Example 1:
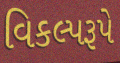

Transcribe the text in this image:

વિકલ્પરૂપે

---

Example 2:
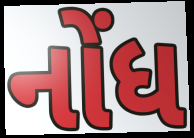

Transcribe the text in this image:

નોંધ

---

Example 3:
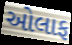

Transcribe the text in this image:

ઓલાફ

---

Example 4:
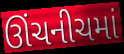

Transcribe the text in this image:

ઊંચનીચમાં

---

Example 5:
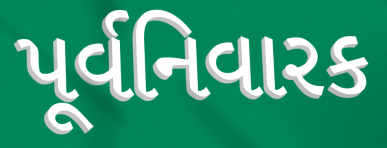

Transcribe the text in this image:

પૂર્વનિવારક